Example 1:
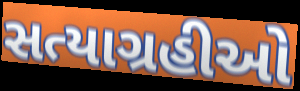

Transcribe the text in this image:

સત્યાગ્રહીઓ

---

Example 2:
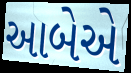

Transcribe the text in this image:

આબેએ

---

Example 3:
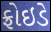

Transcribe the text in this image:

ફ્રોઇડે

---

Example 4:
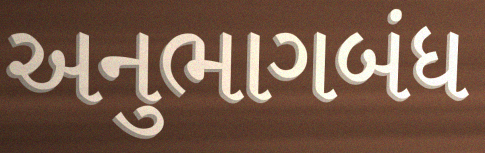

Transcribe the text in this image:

અનુભાગબંધ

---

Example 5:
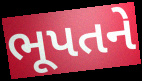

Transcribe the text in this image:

ભૂપતને